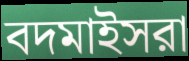
বদমাইসরা